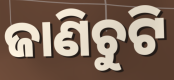
ଜାଣିଚୁଟି